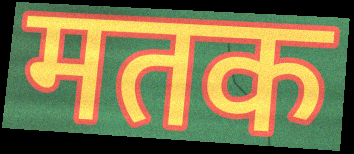
मतक